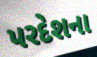
પરદેશના